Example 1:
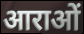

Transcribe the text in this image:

आराओं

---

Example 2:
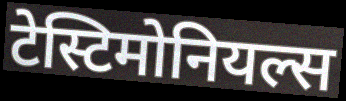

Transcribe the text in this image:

टेस्टिमोनियल्स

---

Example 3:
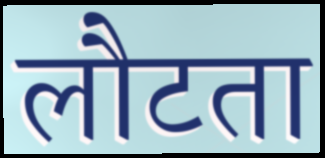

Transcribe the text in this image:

लौटता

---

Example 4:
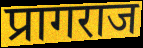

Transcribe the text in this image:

प्रागराज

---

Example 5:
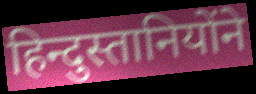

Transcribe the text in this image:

हिन्दुस्तानियोंने